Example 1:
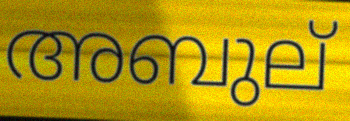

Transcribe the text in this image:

അബുല്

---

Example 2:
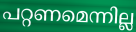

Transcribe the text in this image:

പറ്റണമെന്നില്ല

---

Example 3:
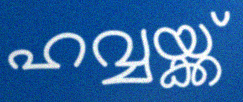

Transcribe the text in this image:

ഹവ്വയ്ക്ക്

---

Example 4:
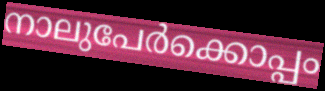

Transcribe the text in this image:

നാലുപേർക്കൊപ്പം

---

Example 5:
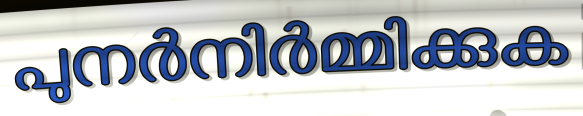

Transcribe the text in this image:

പുനർനിർമ്മിക്കുക